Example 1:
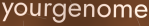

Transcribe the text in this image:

yourgenome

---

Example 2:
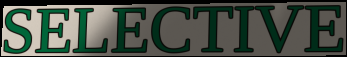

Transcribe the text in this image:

SELECTIVE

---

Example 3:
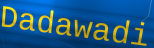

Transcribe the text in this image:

Dadawadi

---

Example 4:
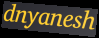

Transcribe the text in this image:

dnyanesh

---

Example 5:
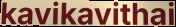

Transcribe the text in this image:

kavikavithai